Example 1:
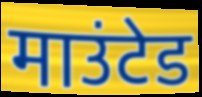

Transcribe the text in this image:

माउंटेड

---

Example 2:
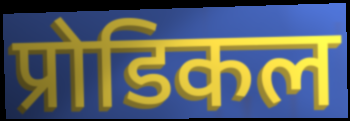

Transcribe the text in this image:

प्रोडिकल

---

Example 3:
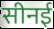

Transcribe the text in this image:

सीनई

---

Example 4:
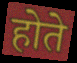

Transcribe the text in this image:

होते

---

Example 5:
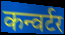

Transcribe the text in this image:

कन्वर्टर